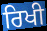
ਰਿਖੀ